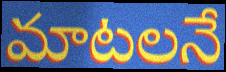
మాటలనే